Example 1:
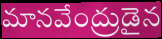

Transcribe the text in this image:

మానవేంద్రుడైన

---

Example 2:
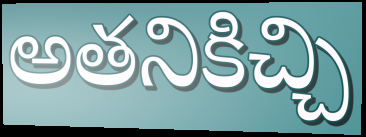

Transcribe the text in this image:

అతనికిచ్చి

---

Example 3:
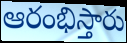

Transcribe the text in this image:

ఆరంభిస్తారు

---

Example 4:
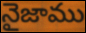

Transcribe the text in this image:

నైజాము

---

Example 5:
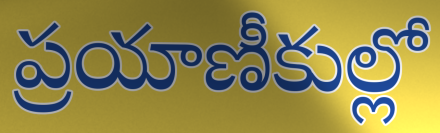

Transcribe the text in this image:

ప్రయాణీకుల్లో